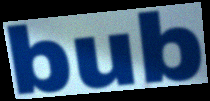
bub